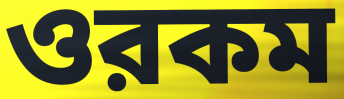
ওরকম